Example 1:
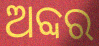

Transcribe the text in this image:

ଅବ୍ଦର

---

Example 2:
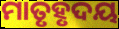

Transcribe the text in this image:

ମାତୃହୃଦୟ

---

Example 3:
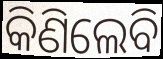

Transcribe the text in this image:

କିଣିଲେବି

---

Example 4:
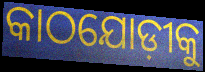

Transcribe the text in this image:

କାଠଯୋଡ଼ୀକୁ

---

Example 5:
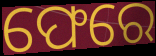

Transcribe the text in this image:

ଫେରେ